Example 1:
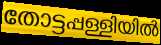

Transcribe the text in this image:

തോട്ടപ്പള്ളിയിൽ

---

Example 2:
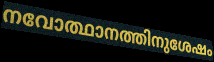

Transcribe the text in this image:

നവോത്ഥാനത്തിനുശേഷം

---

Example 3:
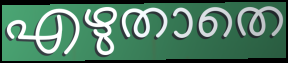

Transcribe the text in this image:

എഴുതാതെ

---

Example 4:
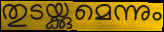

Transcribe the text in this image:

തുടയ്ക്കുമെന്നും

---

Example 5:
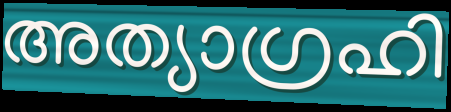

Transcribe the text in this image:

അത്യാഗ്രഹി